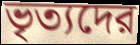
ভৃত্যদের